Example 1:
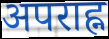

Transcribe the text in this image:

अपराह्न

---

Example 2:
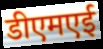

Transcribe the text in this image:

डीएमएई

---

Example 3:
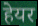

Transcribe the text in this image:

हेयर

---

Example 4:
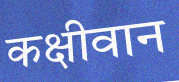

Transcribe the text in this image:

कक्षीवान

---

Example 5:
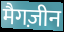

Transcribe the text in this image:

मैगज़ीन